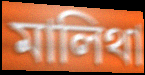
মালিথা